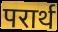
परार्थ